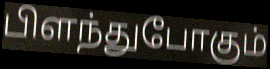
பிளந்துபோகும்